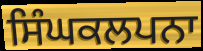
ਸਿੰਘਕਲਪਨਾ